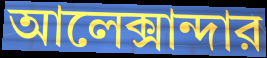
আলেক্সান্দার